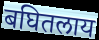
बघितलाय